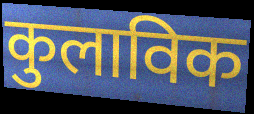
कुलाविक